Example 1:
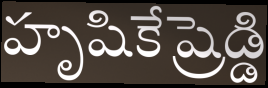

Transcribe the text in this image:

హృషికేష్రెడ్డి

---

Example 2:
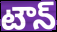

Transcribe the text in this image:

టౌన్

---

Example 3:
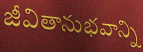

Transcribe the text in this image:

జీవితానుభవాన్ని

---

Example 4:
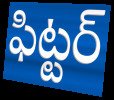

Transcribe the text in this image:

ఫిట్టర్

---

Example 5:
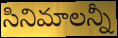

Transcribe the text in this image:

సినిమాలన్నీ